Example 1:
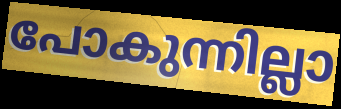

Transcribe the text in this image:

പോകുന്നില്ലാ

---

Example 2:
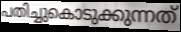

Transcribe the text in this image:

പതിച്ചുകൊടുക്കുന്നത്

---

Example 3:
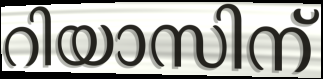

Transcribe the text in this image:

റിയാസിന്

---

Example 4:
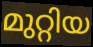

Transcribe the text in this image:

മുറ്റിയ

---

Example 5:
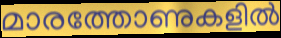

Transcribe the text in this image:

മാരത്തോണുകളിൽ